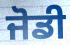
ਜੋਡੀ